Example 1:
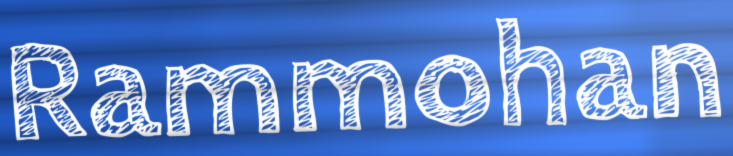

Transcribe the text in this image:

Rammohan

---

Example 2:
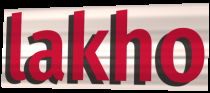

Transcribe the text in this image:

lakho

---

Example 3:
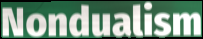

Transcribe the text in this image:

Nondualism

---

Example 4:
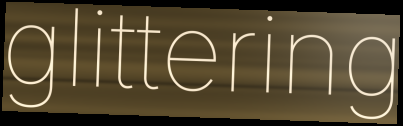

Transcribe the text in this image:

glittering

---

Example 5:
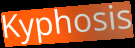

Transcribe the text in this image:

Kyphosis